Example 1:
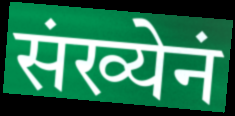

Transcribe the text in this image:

संख्येनं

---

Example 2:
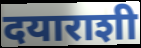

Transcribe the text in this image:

दयाराशी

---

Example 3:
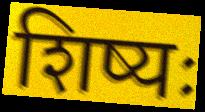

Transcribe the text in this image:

शिष्यः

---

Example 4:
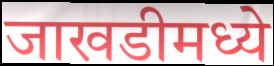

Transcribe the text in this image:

जाखडीमध्ये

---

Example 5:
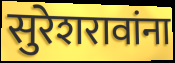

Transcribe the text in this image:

सुरेशरावांना